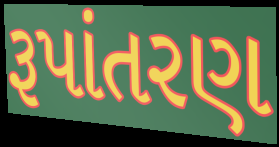
રૂપાંતરણ